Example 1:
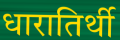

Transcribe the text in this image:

धारातिर्थी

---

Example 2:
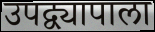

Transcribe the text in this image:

उपद्व्यापाला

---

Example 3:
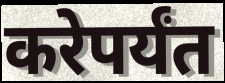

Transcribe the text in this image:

करेपर्यंत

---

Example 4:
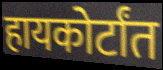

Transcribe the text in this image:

हायकोर्टांत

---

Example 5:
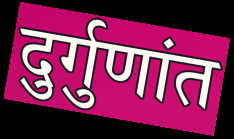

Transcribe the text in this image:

दुर्गुणांत